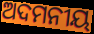
ଅଦମନୀୟ